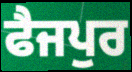
ਫੈਜਪੁਰ